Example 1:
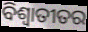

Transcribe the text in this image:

ବିଶ୍ଵାତୀତର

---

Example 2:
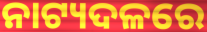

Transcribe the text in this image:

ନାଟ୍ୟଦଳରେ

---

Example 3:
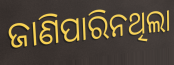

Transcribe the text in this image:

ଜାଣିପାରିନଥିଲା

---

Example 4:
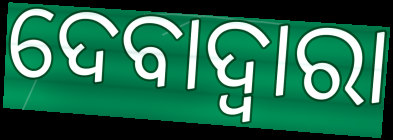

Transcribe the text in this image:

ଦେବାଦ୍ବାରା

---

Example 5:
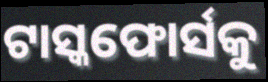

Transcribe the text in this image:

ଟାସ୍କଫୋର୍ସକୁ